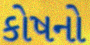
કોષનો